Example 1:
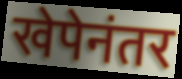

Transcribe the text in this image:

खेपेनंतर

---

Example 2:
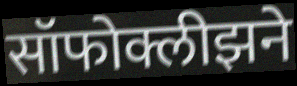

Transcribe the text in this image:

सॉफोक्लीझने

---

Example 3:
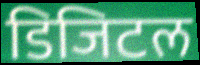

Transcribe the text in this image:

डिजिटल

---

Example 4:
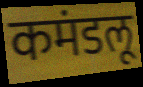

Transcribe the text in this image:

कमंडलू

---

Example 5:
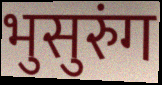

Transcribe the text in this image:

भुसुरुंग